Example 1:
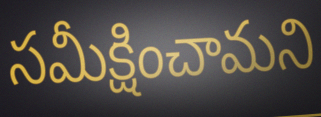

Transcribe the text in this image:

సమీక్షించామని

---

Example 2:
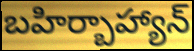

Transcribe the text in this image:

బహిర్బాహ్యాన్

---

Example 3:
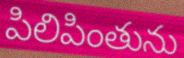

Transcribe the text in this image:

పిలిపింతును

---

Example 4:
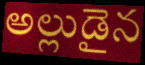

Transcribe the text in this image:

అల్లుడైన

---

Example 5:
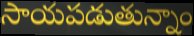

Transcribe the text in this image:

సాయపడుతున్నాం